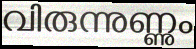
വിരുന്നുണ്ണും